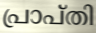
പ്രാപ്തി